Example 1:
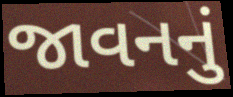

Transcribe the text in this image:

જાવનનું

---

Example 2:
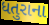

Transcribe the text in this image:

ધતુરાના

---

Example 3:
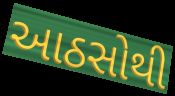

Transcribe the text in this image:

આઠસોથી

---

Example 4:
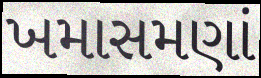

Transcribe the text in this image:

ખમાસમણાં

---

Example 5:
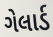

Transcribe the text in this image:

ગેલાર્ડ